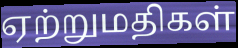
ஏற்றுமதிகள்